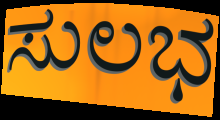
ಸುಲಭ